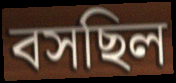
বসছিল